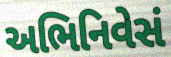
અભિનિવેસં